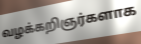
வழக்கறிஞர்களாக